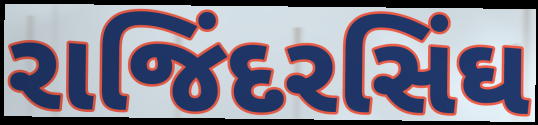
રાજિંદરસિંઘ